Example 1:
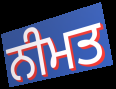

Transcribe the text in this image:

ਨੀਮਤ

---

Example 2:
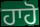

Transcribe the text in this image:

ਹਾਹੋ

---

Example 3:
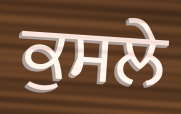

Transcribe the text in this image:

ਕੁਸਲੇ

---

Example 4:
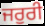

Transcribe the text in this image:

ਜਰੁਰੀ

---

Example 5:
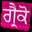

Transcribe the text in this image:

ਗ੍ਰੈਕੋ